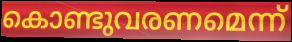
കൊണ്ടുവരണമെന്ന്